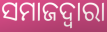
ସମାଜଦ୍ଵାରା